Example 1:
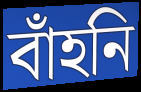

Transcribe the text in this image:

বাঁহনি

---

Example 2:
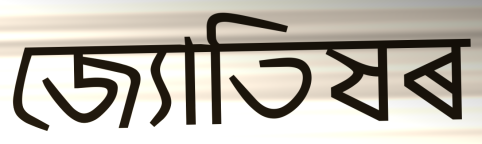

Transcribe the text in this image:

জ্যোতিষৰ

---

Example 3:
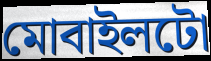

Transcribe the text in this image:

মোবাইলটো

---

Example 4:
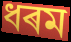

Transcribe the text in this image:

ধৰম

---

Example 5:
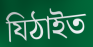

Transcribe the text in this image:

যিঠাইত